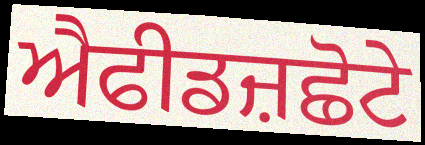
ਐਫੀਡਜ਼ਛੋਟੇ